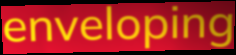
enveloping